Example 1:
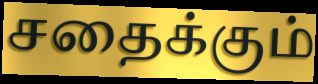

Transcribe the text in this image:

சதைக்கும்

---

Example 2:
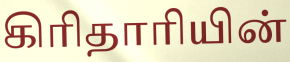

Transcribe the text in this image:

கிரிதாரியின்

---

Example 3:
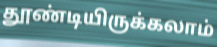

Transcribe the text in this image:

தூண்டியிருக்கலாம்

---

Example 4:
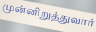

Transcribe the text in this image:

முன்னிறுத்துவார்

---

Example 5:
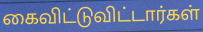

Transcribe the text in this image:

கைவிட்டுவிட்டார்கள்